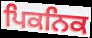
ਪਿਕਨਿਕ